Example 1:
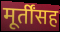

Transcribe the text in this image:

मूर्तींसह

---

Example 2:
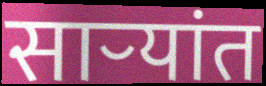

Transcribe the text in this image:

साऱ्यांत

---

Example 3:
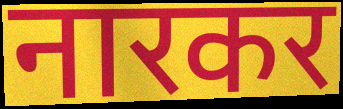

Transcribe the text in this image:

नारकर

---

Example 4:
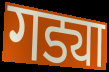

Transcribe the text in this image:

गड्या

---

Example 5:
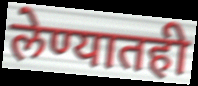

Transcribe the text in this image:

लेण्यातही